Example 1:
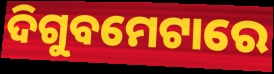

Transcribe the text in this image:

ଦିଗୁବମେଟାରେ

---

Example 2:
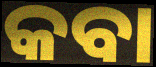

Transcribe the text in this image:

କବା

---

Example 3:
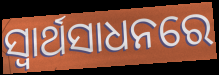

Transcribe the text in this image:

ସ୍ବାର୍ଥସାଧନରେ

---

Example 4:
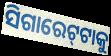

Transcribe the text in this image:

ସିଗାରେଟ୍‍ଟାକୁ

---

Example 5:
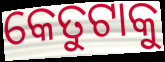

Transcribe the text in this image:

କେତୁଟାକୁ